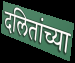
दलितांच्या